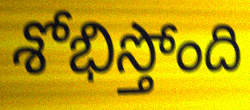
శోభిస్తోంది